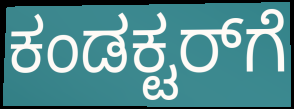
ಕಂಡಕ್ಟರ್‌ಗೆ